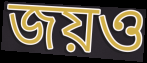
জয়ও